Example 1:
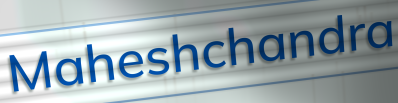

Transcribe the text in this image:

Maheshchandra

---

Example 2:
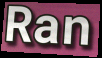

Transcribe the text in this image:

Ran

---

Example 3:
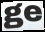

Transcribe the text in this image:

ge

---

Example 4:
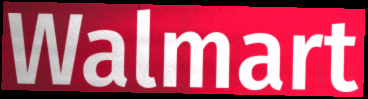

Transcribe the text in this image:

Walmart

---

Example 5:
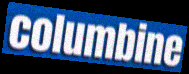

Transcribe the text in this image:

columbine